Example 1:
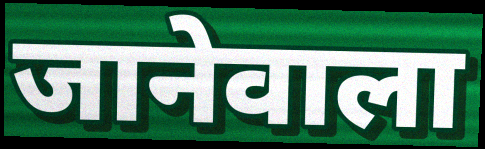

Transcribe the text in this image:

जानेवाला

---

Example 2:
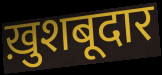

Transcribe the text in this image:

ख़ुशबूदार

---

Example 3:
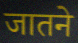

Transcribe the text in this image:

जातने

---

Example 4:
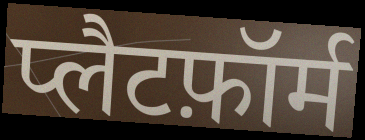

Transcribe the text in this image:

प्लैटफ़ॉर्म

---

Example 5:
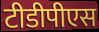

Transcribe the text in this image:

टीडीपीएस